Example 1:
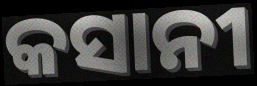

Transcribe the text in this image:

କସାନୀ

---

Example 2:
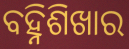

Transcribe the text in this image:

ବହ୍ନିଶିଖାର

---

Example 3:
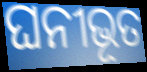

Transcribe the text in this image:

ଘନୀଭୂତ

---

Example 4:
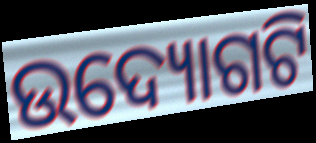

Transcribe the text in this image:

ଉଦ୍ୟୋଗଟି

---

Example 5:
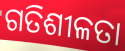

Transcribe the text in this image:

ଗତିଶୀଳତା